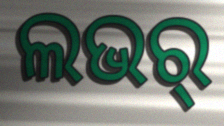
ଲଭର୍